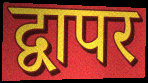
द्वापर